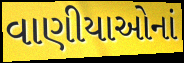
વાણીયાઓનાં